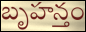
బృహన్తం